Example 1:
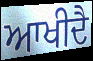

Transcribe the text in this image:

ਆਖੀਦੈ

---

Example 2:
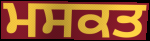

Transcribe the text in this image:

ਮਸਕਤ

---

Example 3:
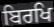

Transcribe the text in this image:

ਬਿਰਖਿ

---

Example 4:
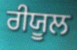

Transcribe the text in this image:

ਰੀਯੂਲ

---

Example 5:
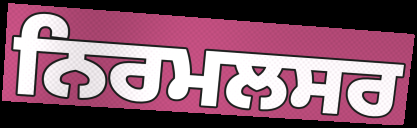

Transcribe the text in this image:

ਨਿਰਮਲਸਰ